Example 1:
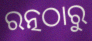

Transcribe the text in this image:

ରତ୍ନଠାରୁ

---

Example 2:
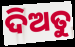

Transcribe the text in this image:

ଦିଅତୁ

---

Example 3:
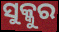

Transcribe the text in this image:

ସୁକ୍କୁର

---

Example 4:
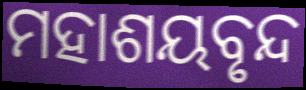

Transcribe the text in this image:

ମହାଶୟବୃନ୍ଦ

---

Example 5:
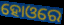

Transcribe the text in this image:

ହୋଓରେ